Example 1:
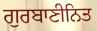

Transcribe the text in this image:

ਗੁਰਬਾਣੀਨਿਤ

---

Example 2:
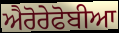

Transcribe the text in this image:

ਐਰੋਰੇਫੋਬੀਆ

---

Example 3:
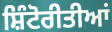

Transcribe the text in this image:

ਸ਼ਿੰਟੋਰੀਤੀਆਂ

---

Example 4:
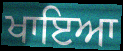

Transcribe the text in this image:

ਖਾਇਆ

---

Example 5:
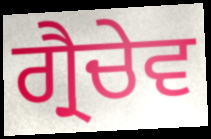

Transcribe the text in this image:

ਗ੍ਰੈਚੇਵ